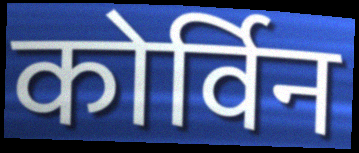
कोर्विन